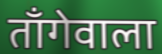
ताँगेवाला